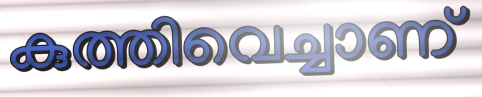
കുത്തിവെച്ചാണ്